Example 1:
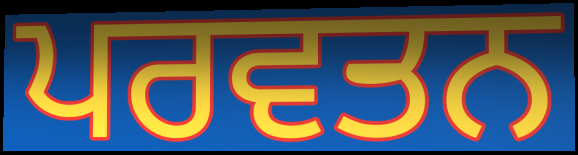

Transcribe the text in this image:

ਪਰਵਤਨ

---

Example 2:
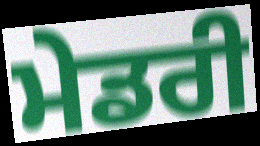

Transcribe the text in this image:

ਮੇਡਰੀ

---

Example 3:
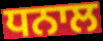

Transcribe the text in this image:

ਧਨਾਲ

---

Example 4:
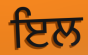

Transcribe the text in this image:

ਇਲ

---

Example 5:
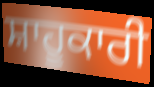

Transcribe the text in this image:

ਸ਼ਾਹੂਕਾਰੀ